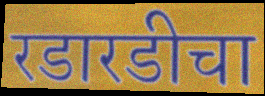
रडारडीचा